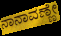
ನಾನಾವಣ್ಣೇ